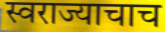
स्वराज्याचाच